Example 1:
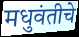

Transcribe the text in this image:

मधुवंतीचे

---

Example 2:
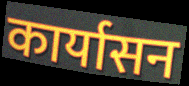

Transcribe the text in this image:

कार्यासन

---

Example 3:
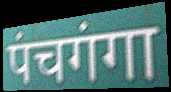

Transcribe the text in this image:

पंचगंगा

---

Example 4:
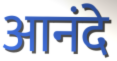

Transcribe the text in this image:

आनंदे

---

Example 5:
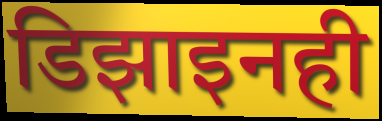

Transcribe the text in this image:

डिझाइनही